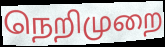
நெறிமுறை